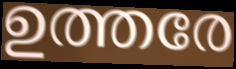
ഉത്തരേ